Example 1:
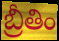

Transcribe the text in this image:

బ్రీతిం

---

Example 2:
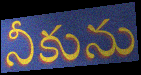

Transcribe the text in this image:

నీకును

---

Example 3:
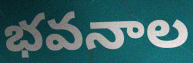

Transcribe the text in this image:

భవనాల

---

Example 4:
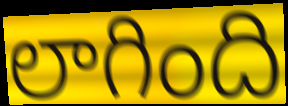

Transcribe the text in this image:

లాగింది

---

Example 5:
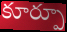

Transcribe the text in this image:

కూర్పూ